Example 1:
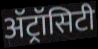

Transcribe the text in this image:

ॲट्रॉसिटी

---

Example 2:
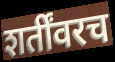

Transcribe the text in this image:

शर्तींवरच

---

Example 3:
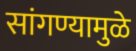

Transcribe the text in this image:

सांगण्यामुळे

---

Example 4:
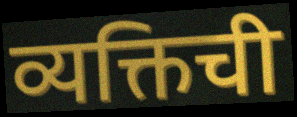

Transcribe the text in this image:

व्यक्तिची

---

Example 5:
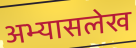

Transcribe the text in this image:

अभ्यासलेख